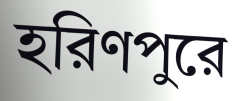
হরিণপুরে